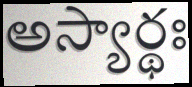
అస్యార్థః